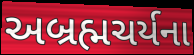
અબ્રહ્મચર્યના